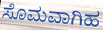
ಸೊಮವಾಗಿಹ